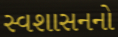
સ્વશાસનનો